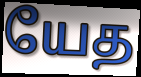
யேத